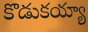
కొడుకయ్యా